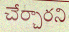
చేర్చారని